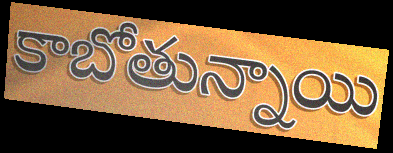
కాబోతున్నాయి